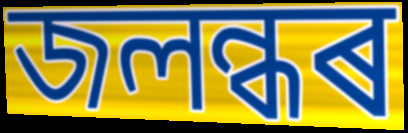
জলন্ধৰ